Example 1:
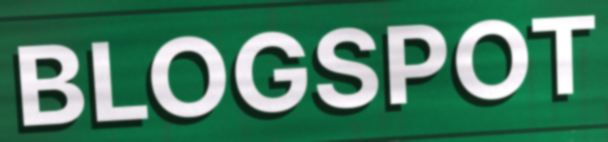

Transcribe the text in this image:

BLOGSPOT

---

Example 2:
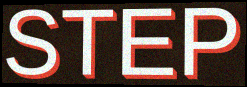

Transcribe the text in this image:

STEP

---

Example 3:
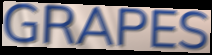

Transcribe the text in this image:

GRAPES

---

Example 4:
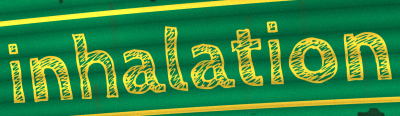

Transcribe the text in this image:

inhalation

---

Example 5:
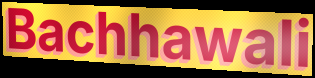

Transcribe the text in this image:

Bachhawali